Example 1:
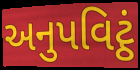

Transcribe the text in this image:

અનુપવિટ્ઠં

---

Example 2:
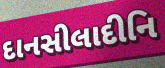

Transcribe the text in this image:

દાનસીલાદીનિ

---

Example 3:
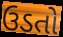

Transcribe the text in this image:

ઉડતો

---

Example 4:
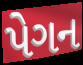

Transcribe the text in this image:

પેગન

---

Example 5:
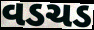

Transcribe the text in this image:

વડચડ